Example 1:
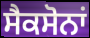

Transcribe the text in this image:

ਸੈਕਸੋਨਾਂ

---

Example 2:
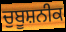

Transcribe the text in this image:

ਚੁਬੂਸ਼ਨੀਕ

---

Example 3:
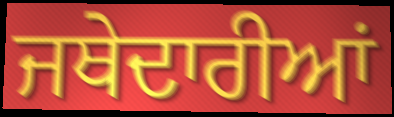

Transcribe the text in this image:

ਜਥੇਦਾਰੀਆਂ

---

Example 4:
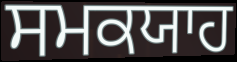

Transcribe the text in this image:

ਸਮਕਯਾਹ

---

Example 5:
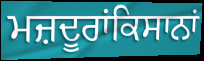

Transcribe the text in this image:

ਮਜ਼ਦੂਰਾਂਕਿਸਾਨਾਂ